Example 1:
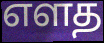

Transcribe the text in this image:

எளத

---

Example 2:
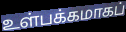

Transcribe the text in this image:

உள்பக்கமாகப்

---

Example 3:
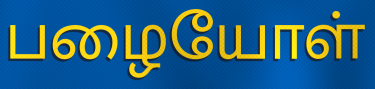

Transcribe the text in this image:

பழையோள்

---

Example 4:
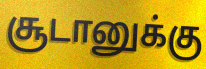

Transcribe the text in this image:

சூடானுக்கு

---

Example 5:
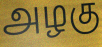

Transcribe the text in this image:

அழகு